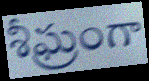
శీఘ్రంగా